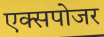
एक्सपोजर